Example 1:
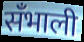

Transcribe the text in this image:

सँभाली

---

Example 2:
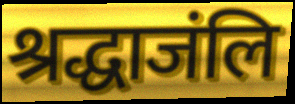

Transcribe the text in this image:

श्रद्धाजंलि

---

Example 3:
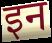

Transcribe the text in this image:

इन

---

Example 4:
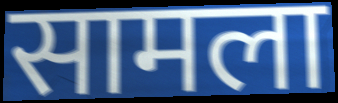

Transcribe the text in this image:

सामला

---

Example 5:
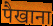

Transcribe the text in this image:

पैखाना